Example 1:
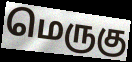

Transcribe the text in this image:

மெருகு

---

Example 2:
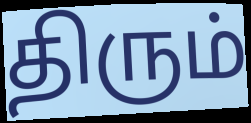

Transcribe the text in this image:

திரும்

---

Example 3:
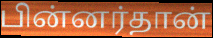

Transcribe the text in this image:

பின்னர்தான்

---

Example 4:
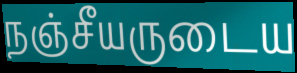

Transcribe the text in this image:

நஞ்சீயருடைய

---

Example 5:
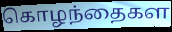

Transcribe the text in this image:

கொழந்தைகள